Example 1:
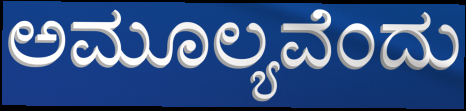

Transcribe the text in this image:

ಅಮೂಲ್ಯವೆಂದು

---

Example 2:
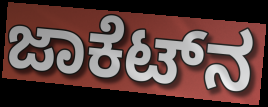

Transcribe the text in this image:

ಜಾಕೆಟ್‌ನ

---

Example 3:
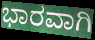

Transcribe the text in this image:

ಭಾರವಾಗಿ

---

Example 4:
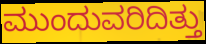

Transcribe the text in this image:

ಮುಂದುವರಿದಿತ್ತು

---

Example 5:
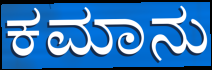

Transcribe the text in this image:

ಕಮಾನು